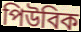
পিউবিক